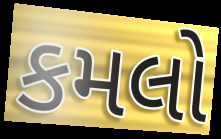
કમલો